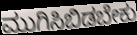
ಮುಗಿಸಿಬಿಡಬೇಕು